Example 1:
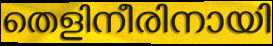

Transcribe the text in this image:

തെളിനീരിനായി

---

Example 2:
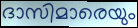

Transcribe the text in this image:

ദാസിമാരെയും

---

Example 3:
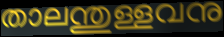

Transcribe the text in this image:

താലന്തുള്ളവനു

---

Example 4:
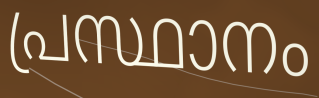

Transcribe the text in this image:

പ്രസ്ഥാനം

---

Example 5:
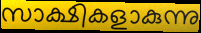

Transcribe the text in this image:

സാക്ഷികളാകുന്നു